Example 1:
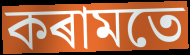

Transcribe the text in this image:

কৰামতে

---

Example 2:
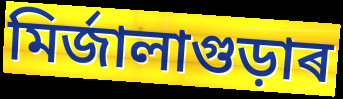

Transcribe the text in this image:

মিৰ্জালাগুড়াৰ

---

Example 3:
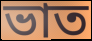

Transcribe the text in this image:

ভাত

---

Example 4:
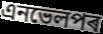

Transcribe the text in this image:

এনভেলপৰ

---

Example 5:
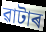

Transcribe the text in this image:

ৱাটাৰ